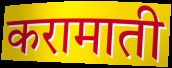
करामाती